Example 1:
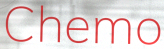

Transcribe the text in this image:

Chemo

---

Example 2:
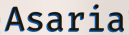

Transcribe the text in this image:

Asaria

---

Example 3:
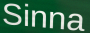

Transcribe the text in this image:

Sinna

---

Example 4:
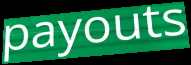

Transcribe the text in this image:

payouts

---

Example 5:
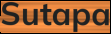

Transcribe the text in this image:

Sutapa